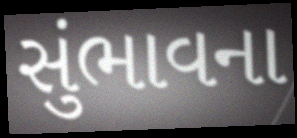
સુંભાવના